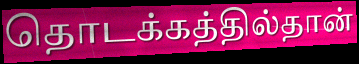
தொடக்கத்தில்தான்